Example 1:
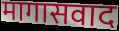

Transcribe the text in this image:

मागासवाद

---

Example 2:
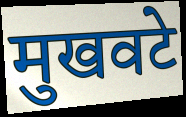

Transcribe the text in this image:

मुखवटे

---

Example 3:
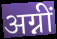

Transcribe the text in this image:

अग्नीं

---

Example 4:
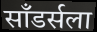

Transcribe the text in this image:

साँडर्सला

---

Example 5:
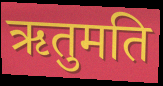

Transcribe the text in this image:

ऋतुमति